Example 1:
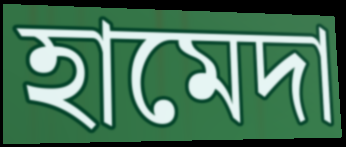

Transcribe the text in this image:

হামেদা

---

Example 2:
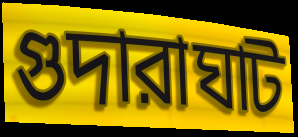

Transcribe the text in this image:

গুদারাঘাট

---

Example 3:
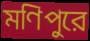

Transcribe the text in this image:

মণিপুরে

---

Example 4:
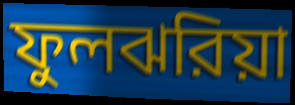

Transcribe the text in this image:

ফুলঝরিয়া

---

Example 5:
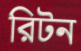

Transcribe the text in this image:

রিটন